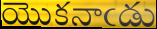
యొకనాఁడు